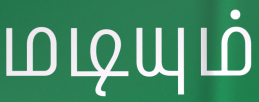
மடியும்